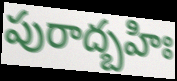
పురాద్బహిః